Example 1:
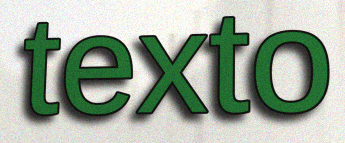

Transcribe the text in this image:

texto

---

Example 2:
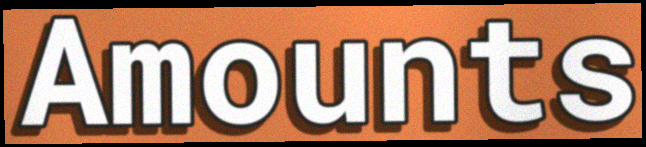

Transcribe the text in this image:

Amounts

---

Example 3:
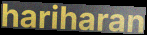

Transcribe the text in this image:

hariharan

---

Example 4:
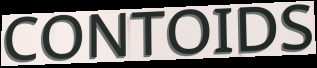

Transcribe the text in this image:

CONTOIDS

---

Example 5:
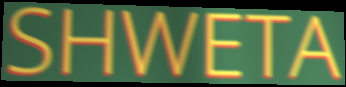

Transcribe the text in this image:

SHWETA